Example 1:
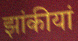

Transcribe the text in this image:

झांकीयां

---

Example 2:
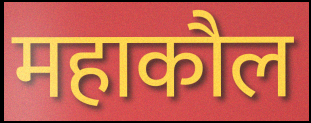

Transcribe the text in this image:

महाकौल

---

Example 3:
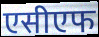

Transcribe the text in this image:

एसीएफ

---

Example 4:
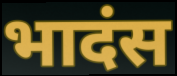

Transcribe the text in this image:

भादंस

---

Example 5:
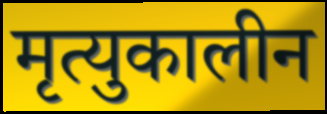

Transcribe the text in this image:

मृत्युकालीन